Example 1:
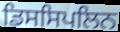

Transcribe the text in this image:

ਡਿਸਸਿਪਲਿਨ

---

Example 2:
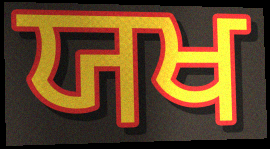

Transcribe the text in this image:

ਯਖ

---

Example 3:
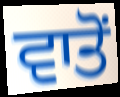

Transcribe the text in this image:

ਵਾਤੋਂ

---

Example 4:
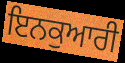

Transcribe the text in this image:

ਇਨਕੁਆਰੀ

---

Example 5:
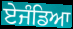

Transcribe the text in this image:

ਏਜੰਡਿਆ